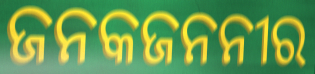
ଜନକଜନନୀର